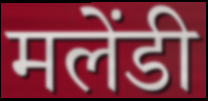
मलेंडी